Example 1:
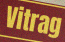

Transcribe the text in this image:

Vitrag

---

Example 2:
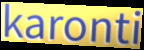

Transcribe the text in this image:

karonti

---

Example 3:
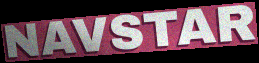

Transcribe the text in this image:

NAVSTAR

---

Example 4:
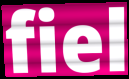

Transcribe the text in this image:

fiel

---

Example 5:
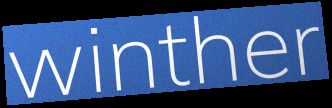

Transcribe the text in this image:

winther